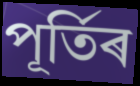
পূৰ্তিৰ